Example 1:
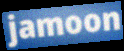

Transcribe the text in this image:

jamoon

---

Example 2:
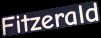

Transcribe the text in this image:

Fitzerald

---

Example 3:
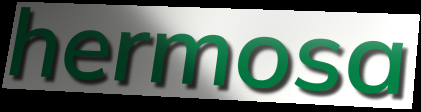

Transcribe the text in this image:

hermosa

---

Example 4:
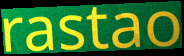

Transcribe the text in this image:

rastao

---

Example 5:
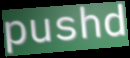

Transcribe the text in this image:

pushd